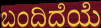
ಬಂದಿದೆಯೆ